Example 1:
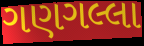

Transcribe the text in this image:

ગણગલ્લા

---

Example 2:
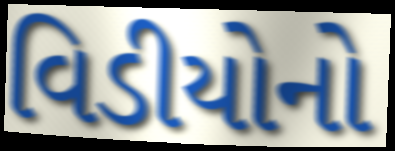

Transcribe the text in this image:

વિડીયોનો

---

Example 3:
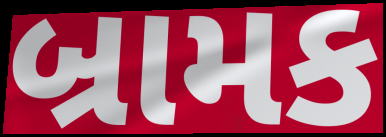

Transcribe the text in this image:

બ્રામક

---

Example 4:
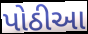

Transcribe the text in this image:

પોઠીઆ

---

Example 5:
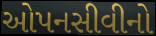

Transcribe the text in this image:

ઓપનસીવીનો